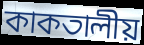
কাকতালীয়